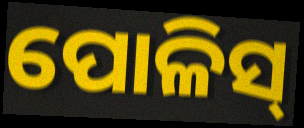
ପୋଳିସ୍